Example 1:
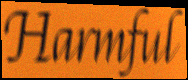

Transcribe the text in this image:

Harmful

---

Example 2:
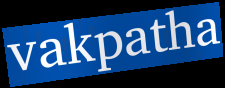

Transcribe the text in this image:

vakpatha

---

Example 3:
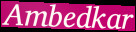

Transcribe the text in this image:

Ambedkar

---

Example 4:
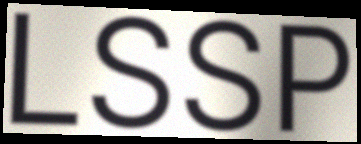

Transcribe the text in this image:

LSSP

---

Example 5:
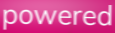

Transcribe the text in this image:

powered